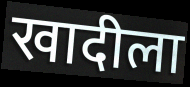
खादीला